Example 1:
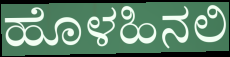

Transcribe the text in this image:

ಹೊಳಹಿನಲಿ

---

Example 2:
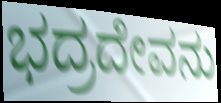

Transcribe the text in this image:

ಭದ್ರದೇವನು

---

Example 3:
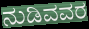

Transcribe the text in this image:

ನುಡಿವವರ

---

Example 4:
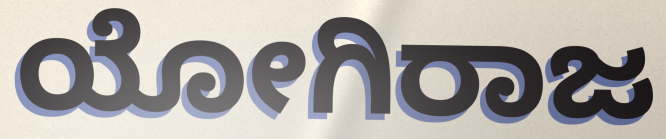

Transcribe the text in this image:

ಯೋಗಿರಾಜ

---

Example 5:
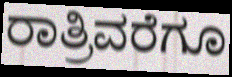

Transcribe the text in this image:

ರಾತ್ರಿವರೆಗೂ